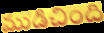
ముడిచింది